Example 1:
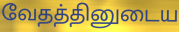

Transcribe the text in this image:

வேதத்தினுடைய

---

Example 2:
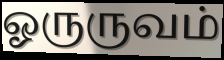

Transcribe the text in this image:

ஓருருவம்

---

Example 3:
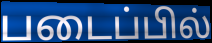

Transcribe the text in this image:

படைப்பில்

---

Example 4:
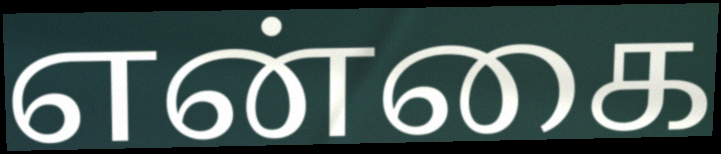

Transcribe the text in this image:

என்கை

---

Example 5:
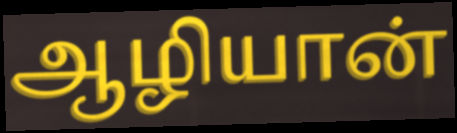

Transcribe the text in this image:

ஆழியான்